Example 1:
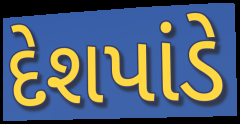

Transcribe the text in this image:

દેશપાંડે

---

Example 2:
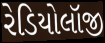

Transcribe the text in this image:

રેડિયોલૉજી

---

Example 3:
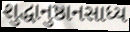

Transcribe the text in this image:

શુદ્ધાનુષ્ઠાનસાધ્ય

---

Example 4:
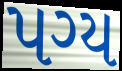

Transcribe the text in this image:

પગ્ય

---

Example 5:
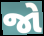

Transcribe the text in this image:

જો